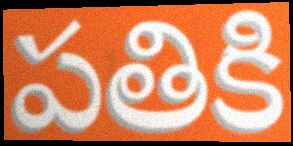
పతికి